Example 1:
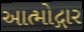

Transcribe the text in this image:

આત્મોદ્ગાર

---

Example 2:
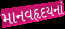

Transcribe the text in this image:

માનવહૃદયનાં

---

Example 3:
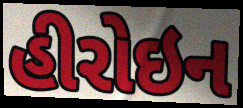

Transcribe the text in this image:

હીરોઇન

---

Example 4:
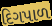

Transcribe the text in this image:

દિગપાળ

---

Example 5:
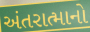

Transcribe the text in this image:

અંતરાત્માનો